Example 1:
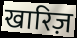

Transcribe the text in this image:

खारिज़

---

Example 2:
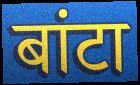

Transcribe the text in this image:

बांटा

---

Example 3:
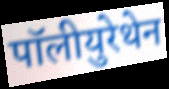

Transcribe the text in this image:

पॉलीयुरेथेन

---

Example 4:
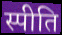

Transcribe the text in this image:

स्पीति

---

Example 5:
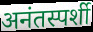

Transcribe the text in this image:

अनंतस्पर्शी